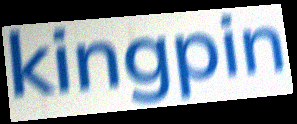
kingpin